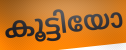
കൂട്ടിയോ